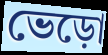
ভেড়ো